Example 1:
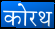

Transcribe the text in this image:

कोरथ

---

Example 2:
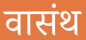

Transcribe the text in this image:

वासंथ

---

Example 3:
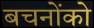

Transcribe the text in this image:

बचनोंको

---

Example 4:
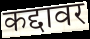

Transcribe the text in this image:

कद्दावर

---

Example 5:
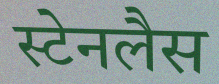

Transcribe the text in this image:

स्टेनलैस